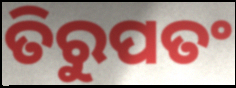
ତିରୁପତଂ